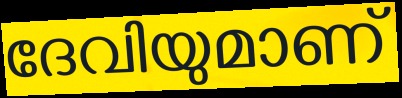
ദേവിയുമാണ്